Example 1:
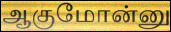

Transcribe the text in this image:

ஆகுமோன்னு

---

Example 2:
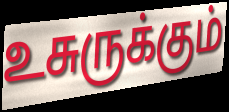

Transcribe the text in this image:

உசுருக்கும்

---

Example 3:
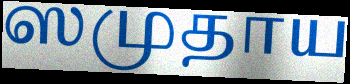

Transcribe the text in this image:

ஸமுதாய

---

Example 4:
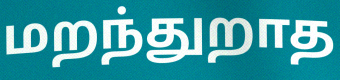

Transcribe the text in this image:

மறந்துறாத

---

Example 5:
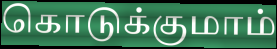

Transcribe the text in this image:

கொடுக்குமாம்